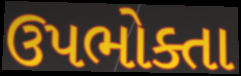
ઉપભોક્તા